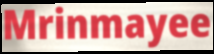
Mrinmayee